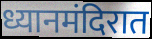
ध्यानमंदिरात